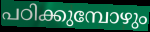
പഠിക്കുമ്പോഴും